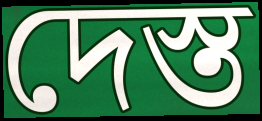
দেস্ত